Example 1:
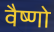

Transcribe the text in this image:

वैष्णो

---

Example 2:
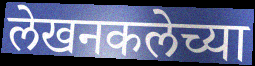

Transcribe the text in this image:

लेखनकलेच्या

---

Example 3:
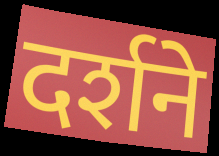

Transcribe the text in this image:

दर्शने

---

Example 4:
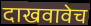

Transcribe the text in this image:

दाखवावेच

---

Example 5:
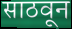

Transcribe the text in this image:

साठवून